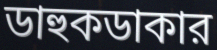
ডাহুকডাকার